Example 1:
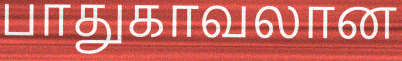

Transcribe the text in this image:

பாதுகாவலான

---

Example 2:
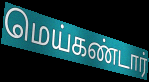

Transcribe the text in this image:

மெய்கண்டார்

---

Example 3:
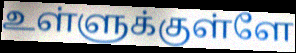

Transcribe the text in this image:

உள்ளுக்குள்ளே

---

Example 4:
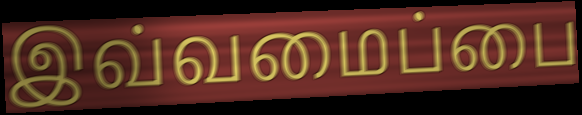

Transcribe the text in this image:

இவ்வமைப்பை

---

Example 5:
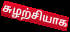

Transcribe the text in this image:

சுழற்சியாக